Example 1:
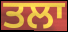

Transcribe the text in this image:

ਤਲਾ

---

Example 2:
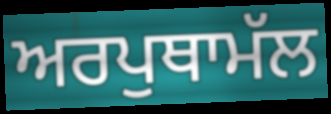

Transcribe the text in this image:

ਅਰਪੁਥਾਮੱਲ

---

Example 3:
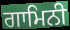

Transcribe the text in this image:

ਗਾਮਿਨੀ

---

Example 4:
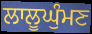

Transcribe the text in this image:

ਲਾਲੂਘੁੰਮਣ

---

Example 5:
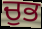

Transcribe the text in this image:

ਚੁਭ